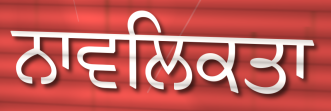
ਨਾਵਲਿਕਤਾ